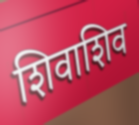
शिवाशिव